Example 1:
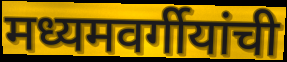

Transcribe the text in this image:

मध्यमवर्गीयांची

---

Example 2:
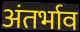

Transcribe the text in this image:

अंतर्भाव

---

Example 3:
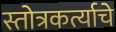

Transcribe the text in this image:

स्तोत्रकर्त्याचे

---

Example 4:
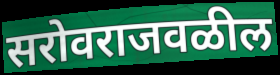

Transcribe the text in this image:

सरोवराजवळील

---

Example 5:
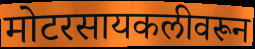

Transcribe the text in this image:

मोटरसायकलीवरून